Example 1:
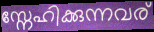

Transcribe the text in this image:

സ്നേഹിക്കുന്നവര്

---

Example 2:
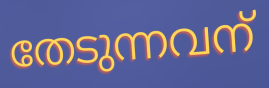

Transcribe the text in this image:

തേടുന്നവന്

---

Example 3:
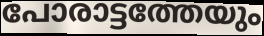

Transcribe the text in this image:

പോരാട്ടത്തേയും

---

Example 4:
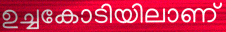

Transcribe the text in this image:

ഉച്ചകോടിയിലാണ്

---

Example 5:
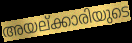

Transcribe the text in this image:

അയല്ക്കാരിയുടെ